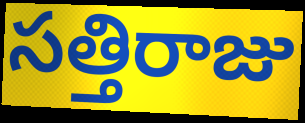
సత్తిరాజు